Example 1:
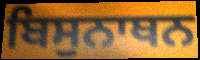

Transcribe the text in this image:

ਬਿਸੁਨਾਥਨ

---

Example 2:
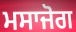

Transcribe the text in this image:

ਮਸਾਜੋਗ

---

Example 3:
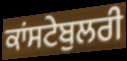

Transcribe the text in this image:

ਕਾਂਸਟੇਬੁਲਰੀ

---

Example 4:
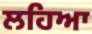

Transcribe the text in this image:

ਲਹਿਆ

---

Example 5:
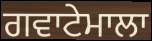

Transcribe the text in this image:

ਗਵਾਟੇਮਾਲਾ